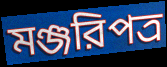
মঞ্জরিপত্র